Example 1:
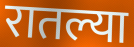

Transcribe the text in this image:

रातल्या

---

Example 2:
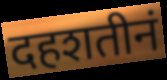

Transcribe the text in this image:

दहशतीनं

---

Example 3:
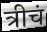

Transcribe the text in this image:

त्रीचं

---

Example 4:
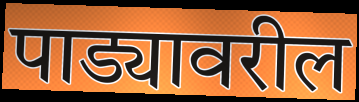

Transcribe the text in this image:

पाड्यावरील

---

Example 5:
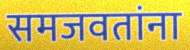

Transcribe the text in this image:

समजवतांना